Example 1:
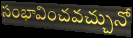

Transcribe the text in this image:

సంభావించవచ్చునో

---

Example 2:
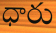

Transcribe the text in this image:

ధారు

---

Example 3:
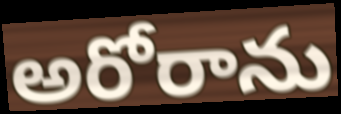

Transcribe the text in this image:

అరోరాను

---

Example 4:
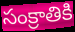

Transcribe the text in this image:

సంక్రాతికి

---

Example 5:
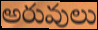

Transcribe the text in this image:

అరువులు